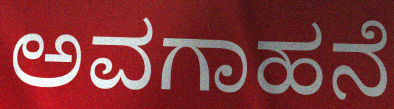
ಅವಗಾಹನೆ